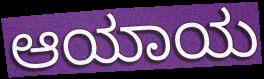
ಆಯಾಯ